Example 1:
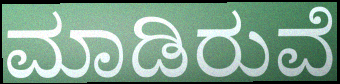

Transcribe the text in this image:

ಮಾಡಿರುವೆ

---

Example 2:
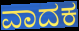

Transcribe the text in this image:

ವಾದಕ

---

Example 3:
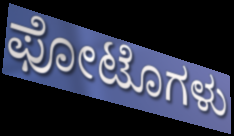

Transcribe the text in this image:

ಫೋಟೊಗಳು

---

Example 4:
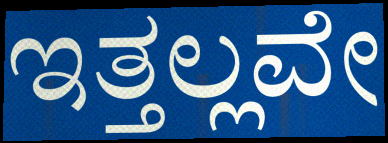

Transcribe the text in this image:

ಇತ್ತಲ್ಲವೇ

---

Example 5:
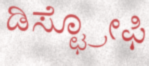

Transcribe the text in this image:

ಡಿಸ್ಟ್ರೋಫಿ